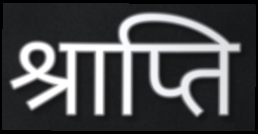
श्राप्ति